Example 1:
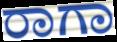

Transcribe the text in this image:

ರಾಗಾ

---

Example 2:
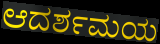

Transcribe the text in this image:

ಆದರ್ಶಮಯ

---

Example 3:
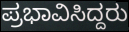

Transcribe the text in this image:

ಪ್ರಭಾವಿಸಿದ್ದರು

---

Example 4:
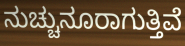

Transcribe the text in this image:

ನುಚ್ಚುನೂರಾಗುತ್ತಿವೆ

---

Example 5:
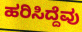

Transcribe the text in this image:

ಹರಿಸಿದ್ದೆವು